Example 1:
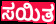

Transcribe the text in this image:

ಸಯಿತ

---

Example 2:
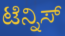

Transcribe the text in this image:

ಟೆನ್ನಿಸ್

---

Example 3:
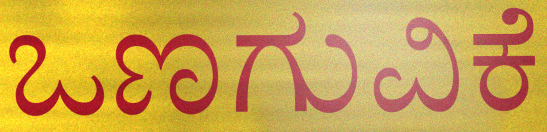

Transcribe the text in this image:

ಒಣಗುವಿಕೆ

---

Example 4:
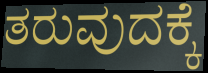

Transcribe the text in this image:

ತರುವುದಕ್ಕೆ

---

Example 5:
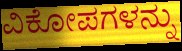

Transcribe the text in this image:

ವಿಕೋಪಗಳನ್ನು